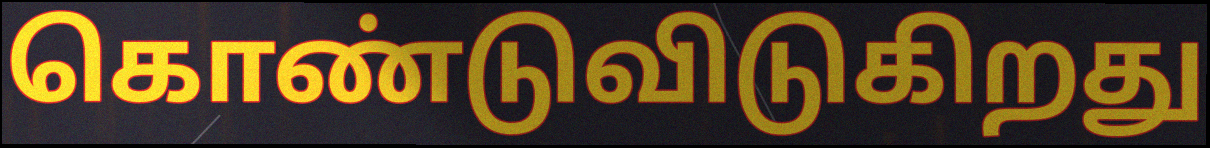
கொண்டுவிடுகிறது